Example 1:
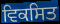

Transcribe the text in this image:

ਵਿਕਸਿਤ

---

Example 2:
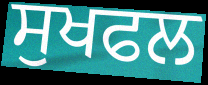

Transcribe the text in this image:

ਸੁਖਫਲ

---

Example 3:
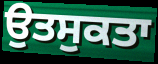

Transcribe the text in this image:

ਉਤਸੁਕਤਾ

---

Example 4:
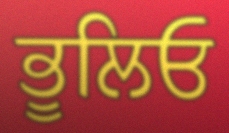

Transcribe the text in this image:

ਭੂਲਿਓ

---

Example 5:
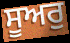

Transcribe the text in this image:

ਸੂਅਰੁ